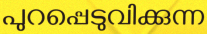
പുറപ്പെടുവിക്കുന്ന